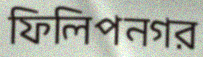
ফিলিপনগর